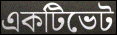
একটিভেট